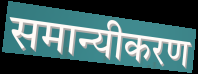
समान्यीकरण